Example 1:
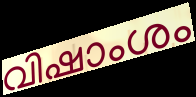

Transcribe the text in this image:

വിഷാംശം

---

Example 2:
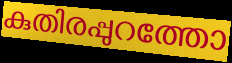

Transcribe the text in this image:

കുതിരപ്പുറത്തോ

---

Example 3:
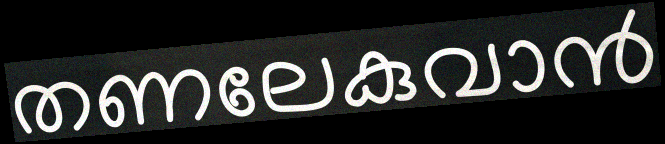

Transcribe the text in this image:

തണലേകുവാൻ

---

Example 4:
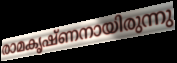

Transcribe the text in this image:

രാമകൃഷ്ണനായിരുന്നു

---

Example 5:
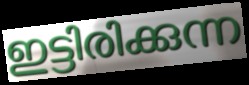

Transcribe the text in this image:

ഇട്ടിരിക്കുന്ന